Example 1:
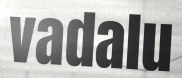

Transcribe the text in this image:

vadalu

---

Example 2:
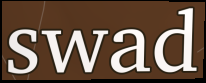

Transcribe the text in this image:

swad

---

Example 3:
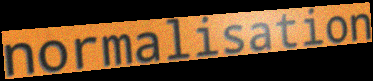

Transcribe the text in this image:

normalisation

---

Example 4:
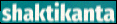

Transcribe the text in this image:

shaktikanta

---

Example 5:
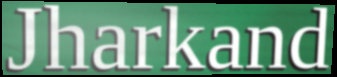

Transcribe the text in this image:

Jharkand